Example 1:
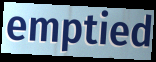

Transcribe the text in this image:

emptied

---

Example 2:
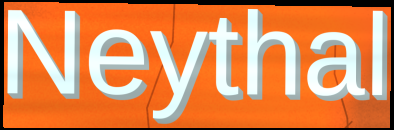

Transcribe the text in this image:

Neythal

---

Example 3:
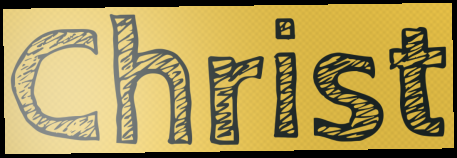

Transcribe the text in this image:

Christ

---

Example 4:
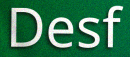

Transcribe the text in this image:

Desf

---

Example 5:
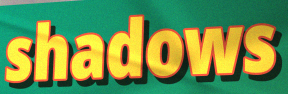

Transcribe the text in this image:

shadows